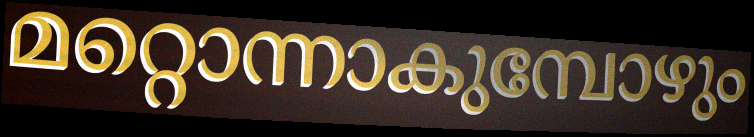
മറ്റൊന്നാകുമ്പോഴും